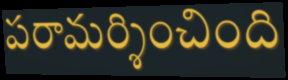
పరామర్శించింది